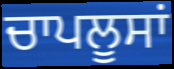
ਚਾਪਲੂਸਾਂ